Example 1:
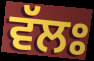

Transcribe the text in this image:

ਵੱਲਃ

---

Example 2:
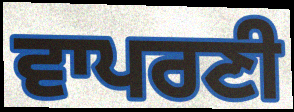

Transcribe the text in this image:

ਵਾਪਰਣੀ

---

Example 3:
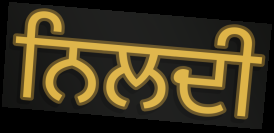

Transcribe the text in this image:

ਨਿਲਦੀ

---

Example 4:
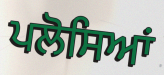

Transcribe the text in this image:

ਪਲੋਸਿਆਂ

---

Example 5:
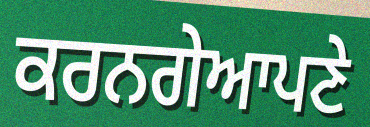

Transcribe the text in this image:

ਕਰਨਗੇਆਪਣੇ